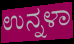
ಉನ್ನಳಾ